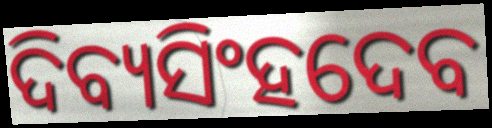
ଦିବ୍ୟସିଂହଦେବ